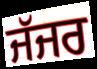
ਜੱਜਰ